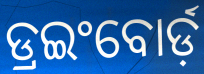
ଡ୍ରଇଂବୋର୍ଡ଼